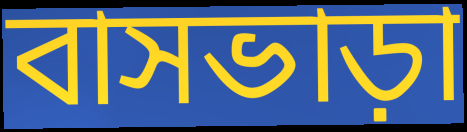
বাসভাড়া